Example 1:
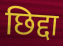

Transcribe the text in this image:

छिद्दा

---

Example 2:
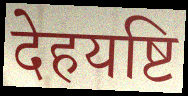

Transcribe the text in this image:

देहयष्टि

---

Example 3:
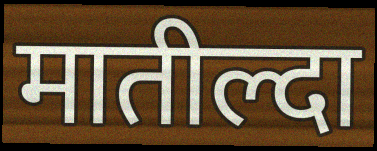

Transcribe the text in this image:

मातील्‍दा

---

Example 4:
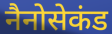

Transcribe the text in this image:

नैनोसेकंड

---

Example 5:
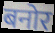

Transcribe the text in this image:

बनोर